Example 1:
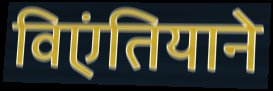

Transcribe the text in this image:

विएंतियाने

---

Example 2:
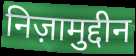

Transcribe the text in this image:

निज़ामुद्दीन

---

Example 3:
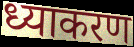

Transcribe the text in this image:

ध्याकरण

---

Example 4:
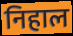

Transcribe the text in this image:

निहाल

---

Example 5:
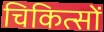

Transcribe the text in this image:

चिकित्सों